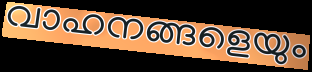
വാഹനങ്ങളെയും